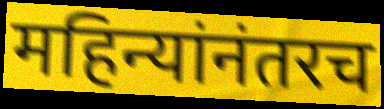
महिन्यांनंतरच